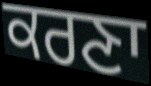
ਕਰਣਾ